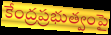
కేంద్రప్రభుత్వంపై